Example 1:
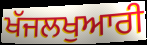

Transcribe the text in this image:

ਖੱਜਲਖੁਆਰੀ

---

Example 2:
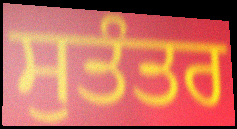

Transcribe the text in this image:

ਸੁਤੰਤਰ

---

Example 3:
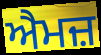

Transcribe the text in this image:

ਐਮਜ਼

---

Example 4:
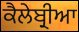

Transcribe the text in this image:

ਕੈਲੇਬ੍ਰੀਆ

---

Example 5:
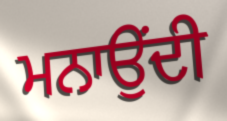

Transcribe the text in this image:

ਮਨਾਉਂਦੀ